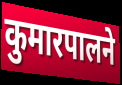
कुमारपालने